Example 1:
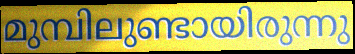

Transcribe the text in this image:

മുമ്പിലുണ്ടായിരുന്നു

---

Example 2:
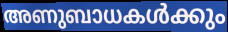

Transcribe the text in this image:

അണുബാധകൾക്കും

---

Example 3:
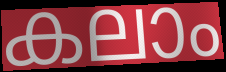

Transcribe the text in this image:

കലാം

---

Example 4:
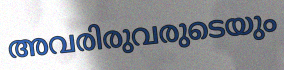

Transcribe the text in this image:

അവരിരുവരുടെയും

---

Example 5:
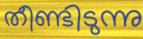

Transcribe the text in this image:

തീണ്ടിടുന്നു